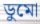
ডুমো